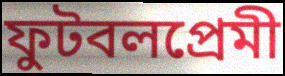
ফুটবলপ্রেমী